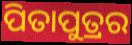
ପିତାପୁତ୍ରର